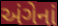
અંગેનાં